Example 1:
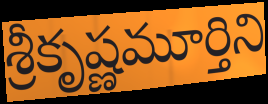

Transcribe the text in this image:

శ్రీకృష్ణమూర్తిని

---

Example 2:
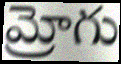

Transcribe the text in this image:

మ్రోగు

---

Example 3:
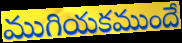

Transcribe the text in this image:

ముగియకముందే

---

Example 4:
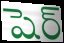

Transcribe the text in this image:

షెర్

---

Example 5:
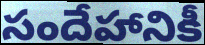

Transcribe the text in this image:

సందేహానికీ